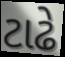
ટાઢે